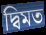
দ্বিমত